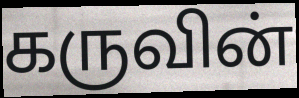
கருவின்